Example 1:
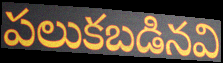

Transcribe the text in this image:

పలుకబడినవి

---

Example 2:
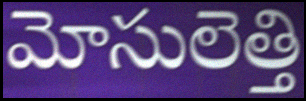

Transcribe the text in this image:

మోసులెత్తి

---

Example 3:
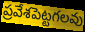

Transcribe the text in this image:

ప్రవేశపెట్టగలవు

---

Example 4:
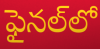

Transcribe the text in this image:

ఫైనల్‌లో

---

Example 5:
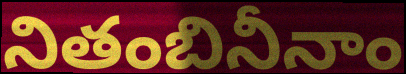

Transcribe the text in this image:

నితంబినీనాం